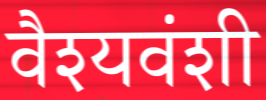
वैश्यवंशी